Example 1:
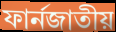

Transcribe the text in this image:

ফার্নজাতীয়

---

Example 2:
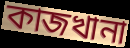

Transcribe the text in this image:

কাজখানা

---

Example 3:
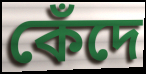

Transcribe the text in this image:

কেঁদে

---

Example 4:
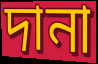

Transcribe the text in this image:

দানা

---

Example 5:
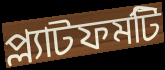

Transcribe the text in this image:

প্ল্যাটফর্মটি